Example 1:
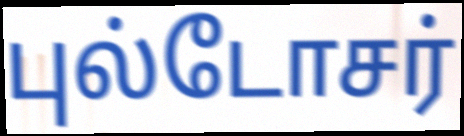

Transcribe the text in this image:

புல்டோசர்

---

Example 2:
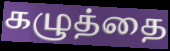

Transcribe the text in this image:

கழுத்தை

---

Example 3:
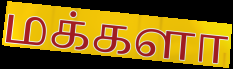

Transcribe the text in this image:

மக்களா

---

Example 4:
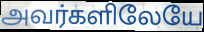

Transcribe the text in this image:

அவர்களிலேயே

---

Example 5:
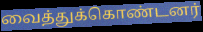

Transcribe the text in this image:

வைத்துக்கொண்டனர்